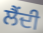
ਲੈਂਦੀ